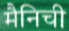
मैनिची